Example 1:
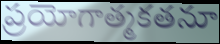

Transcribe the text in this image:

ప్రయోగాత్మకతనూ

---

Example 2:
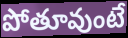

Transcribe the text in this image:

పోతూవుంటే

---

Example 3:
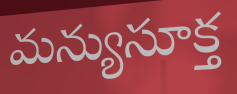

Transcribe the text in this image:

మన్యుసూక్త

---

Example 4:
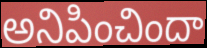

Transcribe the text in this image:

అనిపించిందా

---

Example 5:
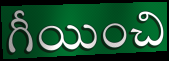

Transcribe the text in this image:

గీయించి